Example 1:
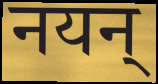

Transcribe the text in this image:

नयन्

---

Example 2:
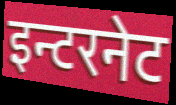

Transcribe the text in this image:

इन्टरनेट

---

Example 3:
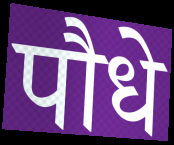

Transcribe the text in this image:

पौधे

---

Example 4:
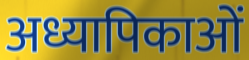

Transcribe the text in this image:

अध्यापिकाओं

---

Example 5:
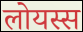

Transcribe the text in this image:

लोयस्स